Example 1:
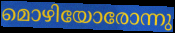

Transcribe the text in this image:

മൊഴിയോരോന്നു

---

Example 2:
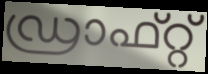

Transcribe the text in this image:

ഡ്രാഫ്റ്റ്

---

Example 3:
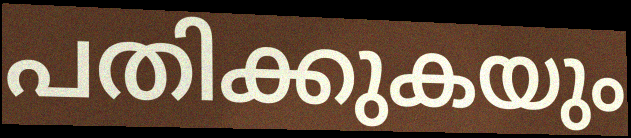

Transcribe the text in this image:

പതിക്കുകയും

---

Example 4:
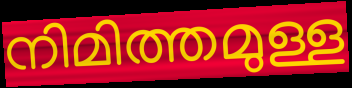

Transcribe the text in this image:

നിമിത്തമുള്ള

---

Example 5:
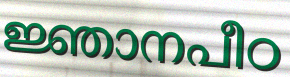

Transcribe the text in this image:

ജ്ഞാനപീഠ